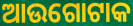
ଆଉଗୋଟାକ